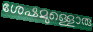
ശേഷമുള്ളൊരു